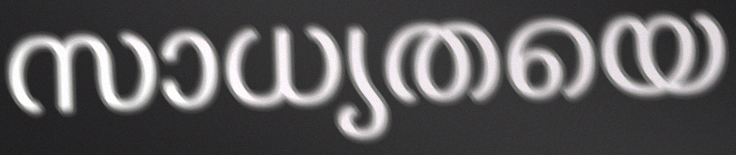
സാധ്യതയെ